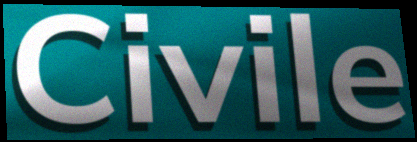
Civile